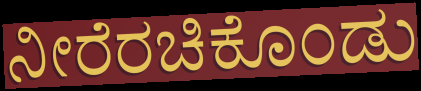
ನೀರೆರಚಿಕೊಂಡು